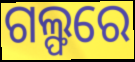
ଗଲ୍ଫରେ